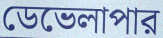
ডেভেলাপার